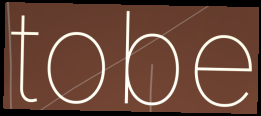
tobe